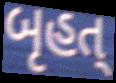
બૃહત્